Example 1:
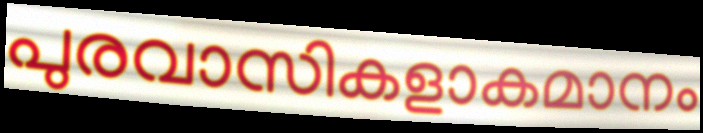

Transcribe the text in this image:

പുരവാസികളാകമാനം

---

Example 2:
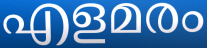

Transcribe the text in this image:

എളമരം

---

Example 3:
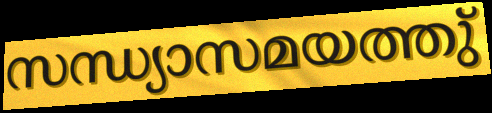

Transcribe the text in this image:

സന്ധ്യാസമയത്തു്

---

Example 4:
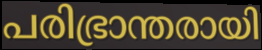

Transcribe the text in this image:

പരിഭ്രാന്തരായി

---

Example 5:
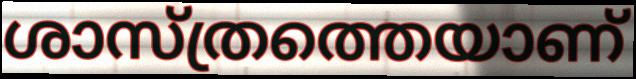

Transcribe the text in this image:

ശാസ്ത്രത്തെയാണ്